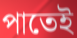
পাতেই